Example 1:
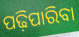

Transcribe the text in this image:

ପଢ଼ିପାରିବା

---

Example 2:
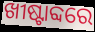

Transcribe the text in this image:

ଖୀଷ୍ଟାବ୍ଦରେ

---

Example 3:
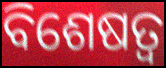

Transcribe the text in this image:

ବିଶେଷତ୍ଵ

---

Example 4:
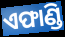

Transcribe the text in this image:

ଏଫାଣ୍ଡି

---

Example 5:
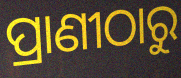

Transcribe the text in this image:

ପ୍ରାଣୀଠାରୁ